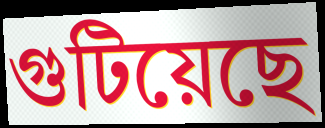
গুটিয়েছে